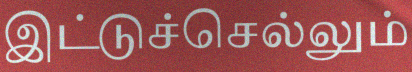
இட்டுச்செல்லும்